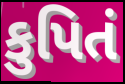
કુપિતં